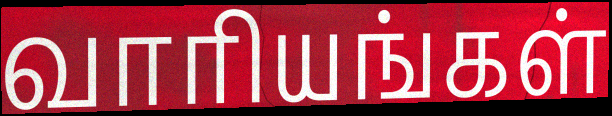
வாரியங்கள்